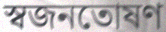
স্বজনতোষণ